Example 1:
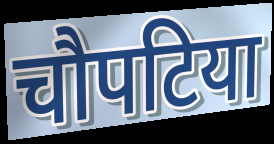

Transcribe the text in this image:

चौपटिया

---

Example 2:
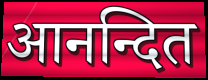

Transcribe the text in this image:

आनन्दित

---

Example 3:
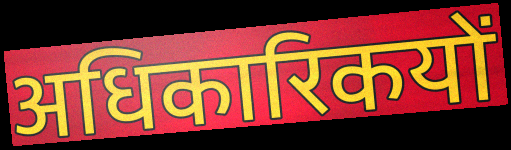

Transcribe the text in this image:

अधिकारिकयों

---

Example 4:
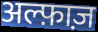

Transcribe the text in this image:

अल्फ़ाज़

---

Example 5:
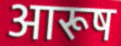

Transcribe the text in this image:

आरूष